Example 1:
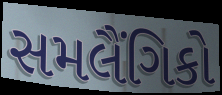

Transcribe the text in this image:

સમલૈંગિકો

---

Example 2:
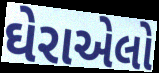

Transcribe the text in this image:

ઘેરાએલો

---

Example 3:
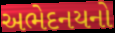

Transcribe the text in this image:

અભેદનયનો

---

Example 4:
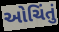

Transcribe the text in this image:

ઓચિંતું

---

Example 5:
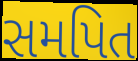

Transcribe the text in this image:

સમપિત